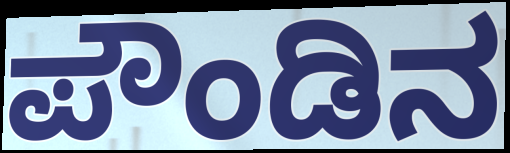
ಪೌಂಡಿನ